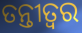
ତନ୍ତୀତ୍ୱର